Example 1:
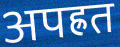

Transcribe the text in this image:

अपह्रत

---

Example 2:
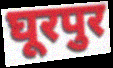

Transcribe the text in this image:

घूरपुर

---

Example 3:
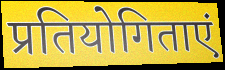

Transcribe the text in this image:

प्रतियोगिताएं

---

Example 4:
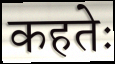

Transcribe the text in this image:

कहतेः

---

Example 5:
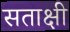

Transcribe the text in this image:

सताक्षी